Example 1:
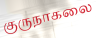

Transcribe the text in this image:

குருநாகலை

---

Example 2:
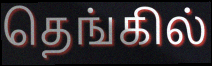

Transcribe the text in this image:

தெங்கில்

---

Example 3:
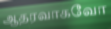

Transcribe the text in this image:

ஆதரவாகவோ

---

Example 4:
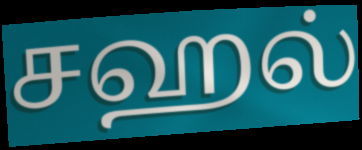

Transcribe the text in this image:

சஹல்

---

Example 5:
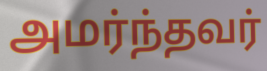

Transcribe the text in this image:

அமர்ந்தவர்